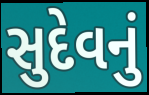
સુદેવનું